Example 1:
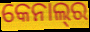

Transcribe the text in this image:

କେନାଲ୍‍ର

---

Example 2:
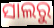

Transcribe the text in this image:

ସାଲରୁ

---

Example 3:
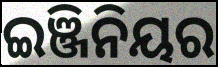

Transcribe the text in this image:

ଇଞ୍ଜିନିୟର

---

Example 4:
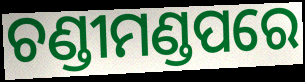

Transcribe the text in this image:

ଚଣ୍ଡୀମଣ୍ଡପରେ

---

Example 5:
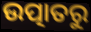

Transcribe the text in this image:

ଉତ୍ପାତରୁ